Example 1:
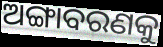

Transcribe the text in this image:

ଅଙ୍ଗାବରଣକୁ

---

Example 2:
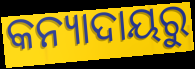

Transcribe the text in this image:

କନ୍ୟାଦାୟରୁ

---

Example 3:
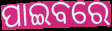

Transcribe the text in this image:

ପାଇବରେ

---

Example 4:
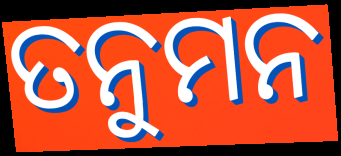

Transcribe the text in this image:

ତନୁମନ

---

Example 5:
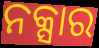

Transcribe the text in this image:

ନକ୍ସାର